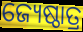
ଜ୍ୟେଷ୍ଠାତ୍ର